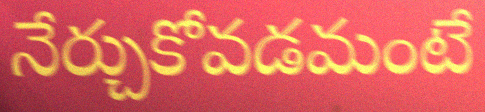
నేర్చుకోవడమంటే